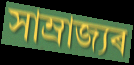
সাম্ৰাজ্যৰ